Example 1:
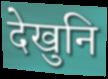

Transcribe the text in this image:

देखुनि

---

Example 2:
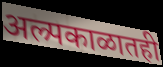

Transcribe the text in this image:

अल्पकाळातही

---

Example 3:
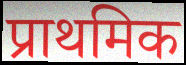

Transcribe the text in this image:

प्राथमिक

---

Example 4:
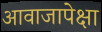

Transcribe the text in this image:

आवाजापेक्षा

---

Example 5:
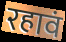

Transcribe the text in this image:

रहावं